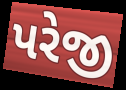
પરેજી